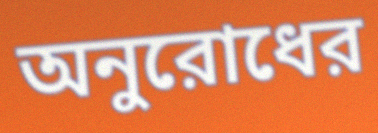
অনুরোধের